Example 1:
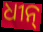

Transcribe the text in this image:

ଧୀନ୍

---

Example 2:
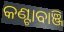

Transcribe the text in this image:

କଣ୍ଟାବାଞ୍ଜି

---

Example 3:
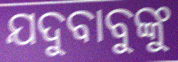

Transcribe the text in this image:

ଯଦୁବାବୁଙ୍କୁ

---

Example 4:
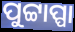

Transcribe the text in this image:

ପୁଟ୍ଟାପ୍ପା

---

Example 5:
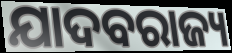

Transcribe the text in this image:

ଯାଦବରାଜ୍ୟ